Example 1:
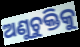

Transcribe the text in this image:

ଅଣୁଚୁକ୍ତିକୁ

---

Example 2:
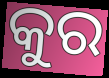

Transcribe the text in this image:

କୁର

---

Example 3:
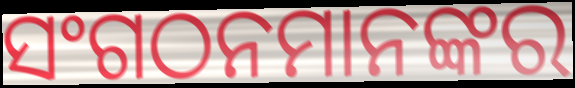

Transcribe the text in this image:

ସଂଗଠନମାନଙ୍କର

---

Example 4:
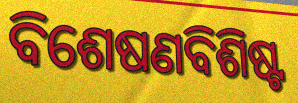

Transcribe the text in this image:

ବିଶେଷଣବିଶିଷ୍ଟ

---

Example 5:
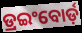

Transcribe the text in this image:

ଡ୍ରଇଂବୋର୍ଡ଼